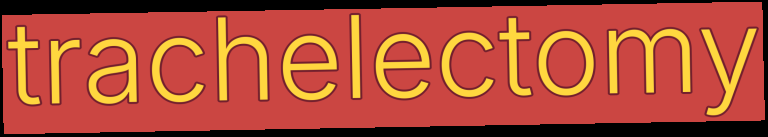
trachelectomy